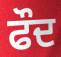
ਫੌਦ